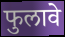
फुलावे